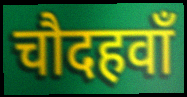
चौदहवाँ